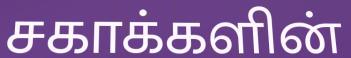
சகாக்களின்